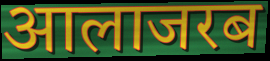
आलाजरब